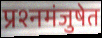
प्रश्नमंजुषेत